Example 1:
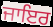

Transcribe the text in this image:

ਜਾਇਰ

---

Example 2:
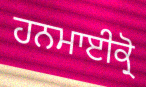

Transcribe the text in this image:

ਹਨਮਾਈਕ੍ਰੋ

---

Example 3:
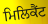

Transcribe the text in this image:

ਮਿਲਿਕੈਂਟ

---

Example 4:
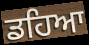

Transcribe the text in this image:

ਡਹਿਆ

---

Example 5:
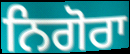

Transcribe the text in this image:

ਨਿਗੋਰਾ